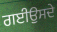
ਗਈਉਸਦੇ